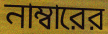
নাম্বারের